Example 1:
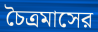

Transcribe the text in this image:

চৈত্রমাসের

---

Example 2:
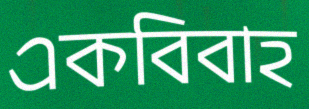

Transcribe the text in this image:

একবিবাহ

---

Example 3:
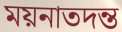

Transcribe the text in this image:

ময়নাতদন্ত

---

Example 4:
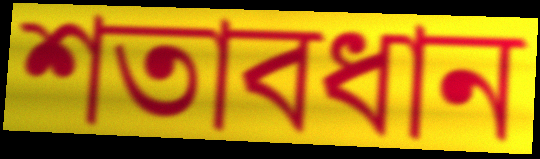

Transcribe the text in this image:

শতাবধান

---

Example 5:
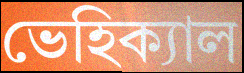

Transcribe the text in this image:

ভেহিক্যাল